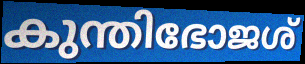
കുന്തിഭോജശ്